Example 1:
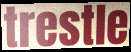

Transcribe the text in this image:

trestle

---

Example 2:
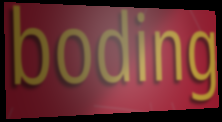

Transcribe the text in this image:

boding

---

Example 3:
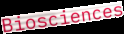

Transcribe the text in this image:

Biosciences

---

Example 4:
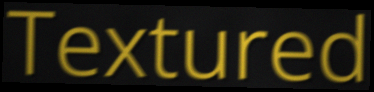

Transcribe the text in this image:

Textured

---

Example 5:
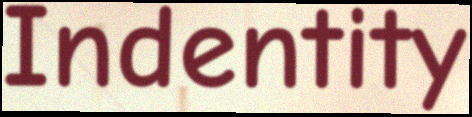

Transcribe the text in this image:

Indentity